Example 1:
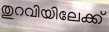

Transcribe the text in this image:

തുറവിയിലേക്ക്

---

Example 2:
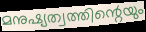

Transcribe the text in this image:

മനുഷ്യത്വത്തിന്റെയും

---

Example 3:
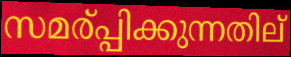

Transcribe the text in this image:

സമര്പ്പിക്കുന്നതില്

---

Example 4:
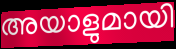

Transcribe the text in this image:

അയാളുമായി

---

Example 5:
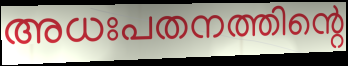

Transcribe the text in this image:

അധഃപതനത്തിന്റെ